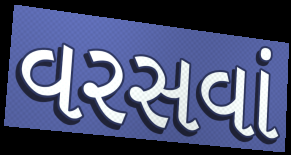
વરસવાં